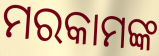
ମରକାମଙ୍କ